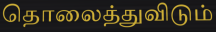
தொலைத்துவிடும்